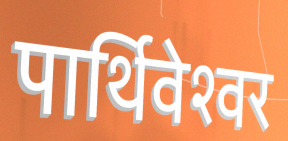
पार्थिवेश्वर